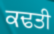
ਕਢਤੀ